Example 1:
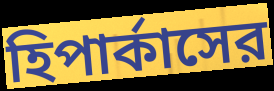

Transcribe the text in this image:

হিপার্কাসের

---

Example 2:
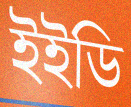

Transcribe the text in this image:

ইইডি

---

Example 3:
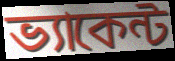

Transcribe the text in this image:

ভ্যাকেন্ট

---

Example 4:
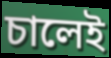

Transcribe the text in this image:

চালেই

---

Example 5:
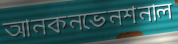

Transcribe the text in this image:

আনকনভেনশনাল